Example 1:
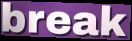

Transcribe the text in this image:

break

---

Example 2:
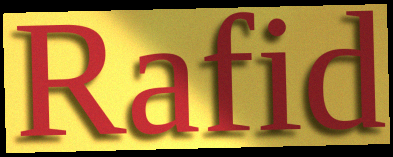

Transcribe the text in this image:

Rafid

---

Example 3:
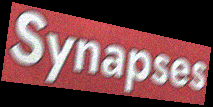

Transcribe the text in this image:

Synapses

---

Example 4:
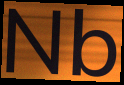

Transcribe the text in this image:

Nb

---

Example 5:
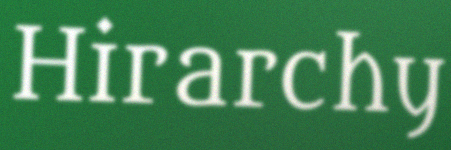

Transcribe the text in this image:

Hirarchy